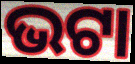
ଭଟା